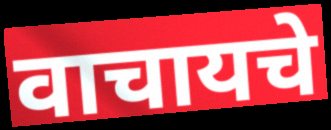
वाचायचे